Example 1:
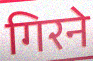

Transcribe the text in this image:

गिरने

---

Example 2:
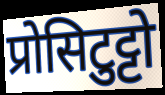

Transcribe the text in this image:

प्रोसिटुट्टो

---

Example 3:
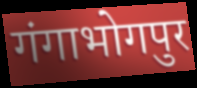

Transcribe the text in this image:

गंगाभोगपुर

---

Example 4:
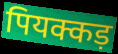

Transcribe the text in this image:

पियक्कड़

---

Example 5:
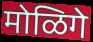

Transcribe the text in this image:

मोळिगे